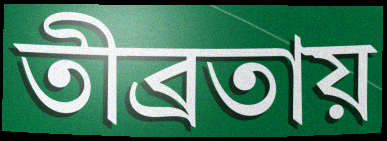
তীব্রতায়